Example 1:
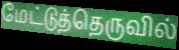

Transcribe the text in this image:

மேட்டுத்தெருவில்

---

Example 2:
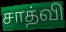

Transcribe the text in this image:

சாத்வி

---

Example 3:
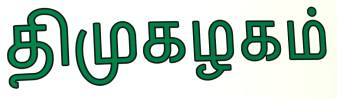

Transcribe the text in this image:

திமுகழகம்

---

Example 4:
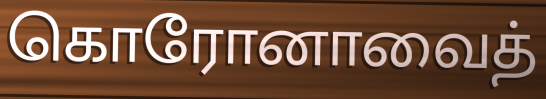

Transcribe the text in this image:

கொரோனாவைத்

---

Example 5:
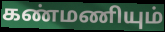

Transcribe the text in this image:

கண்மணியும்